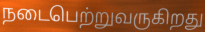
நடைபெற்றுவருகிறது